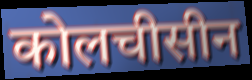
कोलचीसीन